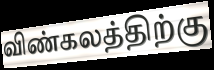
விண்கலத்திற்கு